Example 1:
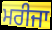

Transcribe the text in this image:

ਮਰੀਜਾ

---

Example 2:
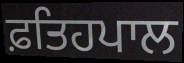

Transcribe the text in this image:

ਫ਼ਤਿਹਪਾਲ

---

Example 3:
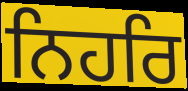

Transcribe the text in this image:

ਨਿਹਰਿ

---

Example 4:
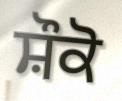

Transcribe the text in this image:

ਸ਼ੌਕੋ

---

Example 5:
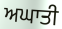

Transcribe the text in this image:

ਅਘਾਤੀ